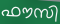
ഫൗസി